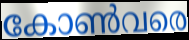
കോൺവരെ